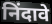
निंदावे